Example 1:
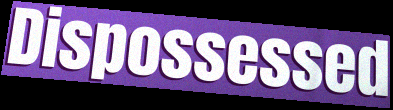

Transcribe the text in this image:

Dispossessed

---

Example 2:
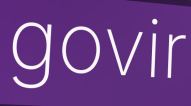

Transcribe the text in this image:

govir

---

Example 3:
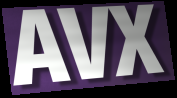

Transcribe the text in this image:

AVX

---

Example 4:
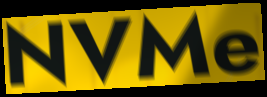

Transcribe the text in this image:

NVMe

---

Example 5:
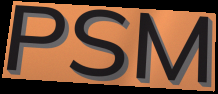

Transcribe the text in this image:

PSM